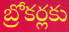
బ్రోకర్లకు